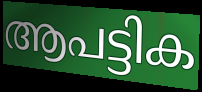
ആപട്ടിക